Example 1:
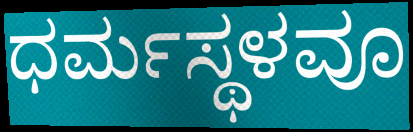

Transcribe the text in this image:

ಧರ್ಮಸ್ಥಳವೂ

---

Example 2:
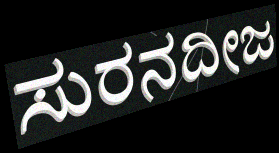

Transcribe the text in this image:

ಸುರನದೀಜ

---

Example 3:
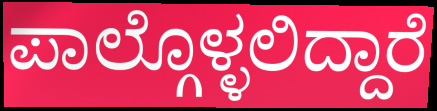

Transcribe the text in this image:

ಪಾಲ್ಗೊಳ್ಳಲಿದ್ದಾರೆ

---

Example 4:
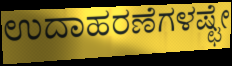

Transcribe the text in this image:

ಉದಾಹರಣೆಗಳಷ್ಟೇ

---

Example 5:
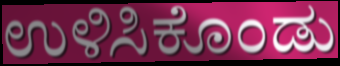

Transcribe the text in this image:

ಉಳಿಸಿಕೊಂಡು